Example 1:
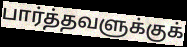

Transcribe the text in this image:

பார்த்தவளுக்குக்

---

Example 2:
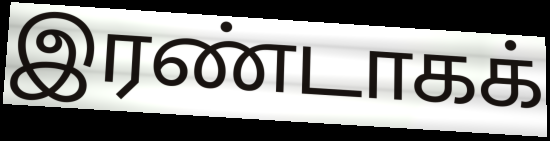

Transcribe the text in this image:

இரண்டாகக்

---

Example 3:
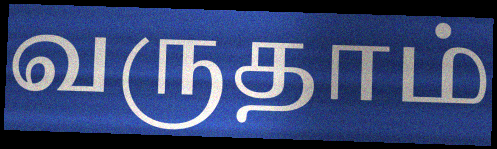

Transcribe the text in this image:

வருதாம்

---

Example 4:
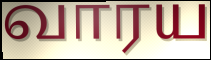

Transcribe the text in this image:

வாரய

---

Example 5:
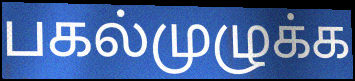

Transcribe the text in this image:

பகல்முழுக்க